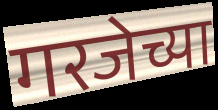
गरजेच्या